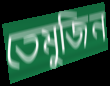
তেমুজিন